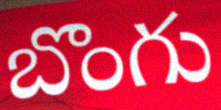
బొంగు